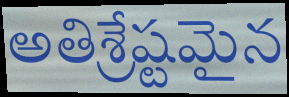
అతిశ్రేష్టమైన